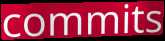
commits